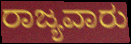
ರಾಜ್ಯವಾರು